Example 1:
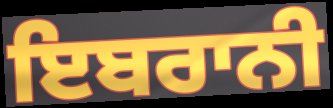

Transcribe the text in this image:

ਇਬਰਾਨੀ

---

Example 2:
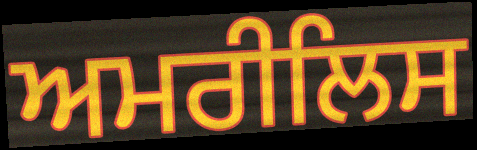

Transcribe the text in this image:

ਅਮਰੀਲਿਸ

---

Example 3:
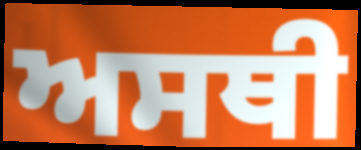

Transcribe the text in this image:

ਅਸਥੀ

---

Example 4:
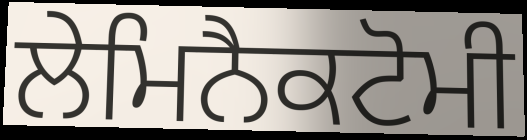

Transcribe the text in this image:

ਲੇਮਿਨੈਕਟੋਮੀ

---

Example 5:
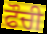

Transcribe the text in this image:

ਫੌਚੀ